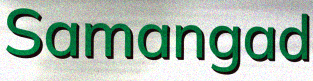
Samangad